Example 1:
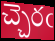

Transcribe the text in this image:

చ్చెరఁ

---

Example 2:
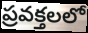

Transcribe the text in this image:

ప్రవక్తలలో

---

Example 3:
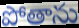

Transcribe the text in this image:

పోతాను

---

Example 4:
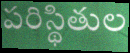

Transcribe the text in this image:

పరిస్థితుల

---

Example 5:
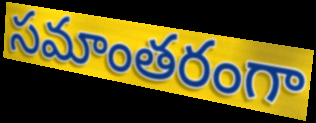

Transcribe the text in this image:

సమాంతరంగా